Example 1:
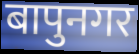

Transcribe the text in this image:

बापुनगर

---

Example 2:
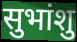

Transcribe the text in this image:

सुभांशु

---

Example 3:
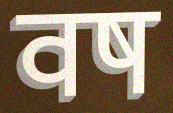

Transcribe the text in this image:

वष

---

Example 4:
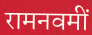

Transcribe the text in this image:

रामनवमीं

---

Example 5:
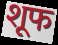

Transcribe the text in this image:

शूफ